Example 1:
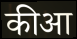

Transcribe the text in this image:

कीआ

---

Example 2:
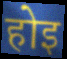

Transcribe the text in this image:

होइ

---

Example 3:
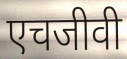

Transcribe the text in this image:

एचजीवी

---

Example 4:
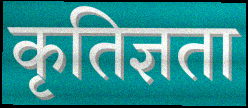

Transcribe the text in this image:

कृतिज्ञता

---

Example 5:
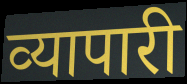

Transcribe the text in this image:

व्‍यापारी